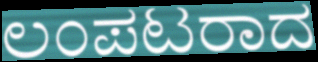
ಲಂಪಟರಾದ